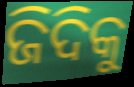
ଜିଦିକୁ